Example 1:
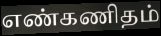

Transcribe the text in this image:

எண்கணிதம்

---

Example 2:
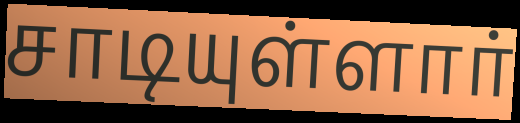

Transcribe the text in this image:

சாடியுள்ளார்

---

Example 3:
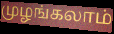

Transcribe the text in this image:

முழங்கலாம்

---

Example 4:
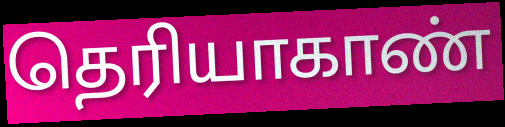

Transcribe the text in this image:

தெரியாகாண்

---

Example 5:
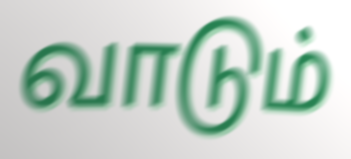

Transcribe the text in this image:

வாடும்